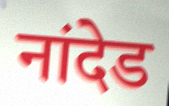
नांदेड